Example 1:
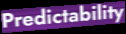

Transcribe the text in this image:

Predictability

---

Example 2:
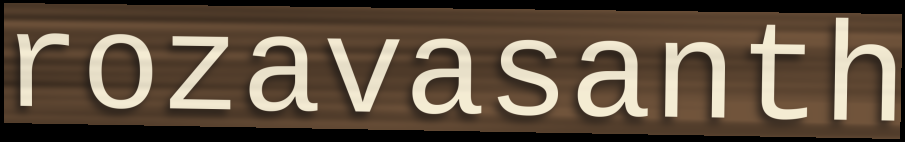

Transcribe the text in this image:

rozavasanth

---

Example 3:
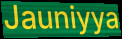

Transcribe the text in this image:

Jauniyya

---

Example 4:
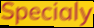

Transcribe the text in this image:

Specialy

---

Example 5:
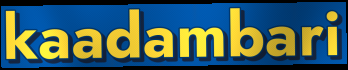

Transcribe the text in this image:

kaadambari